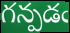
గన్పడఁ